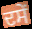
ਦਸੇਂ